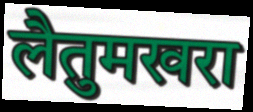
लैतुमखरा